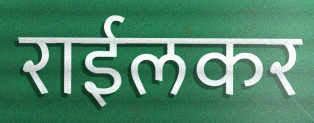
राईलकर